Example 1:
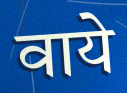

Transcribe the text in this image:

वाये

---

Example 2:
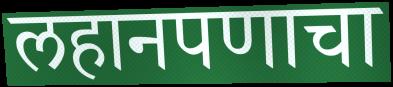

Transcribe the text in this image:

लहानपणाचा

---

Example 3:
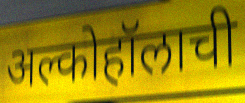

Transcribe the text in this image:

अल्कोहॉलाची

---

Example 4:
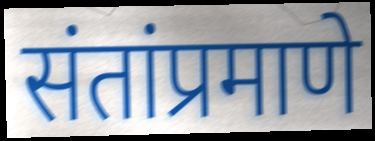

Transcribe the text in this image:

संतांप्रमाणे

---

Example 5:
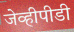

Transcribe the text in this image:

जेव्हीपीडी